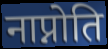
नाप्नोति